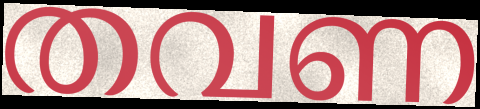
തവണ